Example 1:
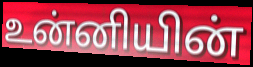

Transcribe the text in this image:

உன்னியின்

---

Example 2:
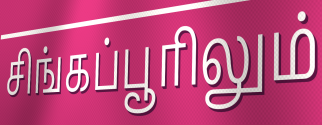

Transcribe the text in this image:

சிங்கப்பூரிலும்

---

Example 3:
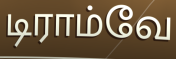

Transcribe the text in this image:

டிராம்வே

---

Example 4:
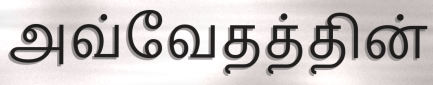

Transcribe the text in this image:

அவ்வேதத்தின்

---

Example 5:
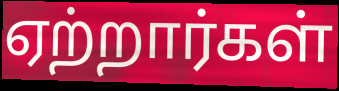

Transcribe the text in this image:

ஏற்றார்கள்